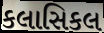
કલાસિકલ